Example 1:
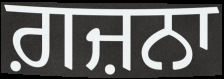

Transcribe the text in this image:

ਗ਼ਜ਼ਨਾ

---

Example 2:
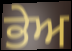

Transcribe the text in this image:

ਭੇਅ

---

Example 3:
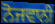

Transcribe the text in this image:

ਨੋਜਵਾਨੀ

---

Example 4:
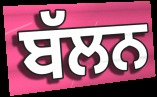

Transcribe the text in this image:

ਬੱਲਨ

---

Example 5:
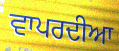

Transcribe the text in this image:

ਵਾਪਰਦੀਆ